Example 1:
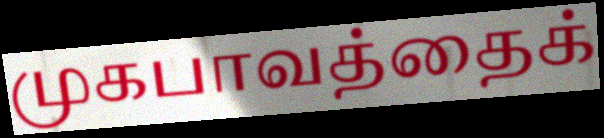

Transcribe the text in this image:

முகபாவத்தைக்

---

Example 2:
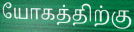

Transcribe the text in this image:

யோகத்திற்கு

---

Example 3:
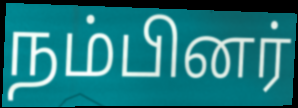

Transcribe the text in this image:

நம்பினர்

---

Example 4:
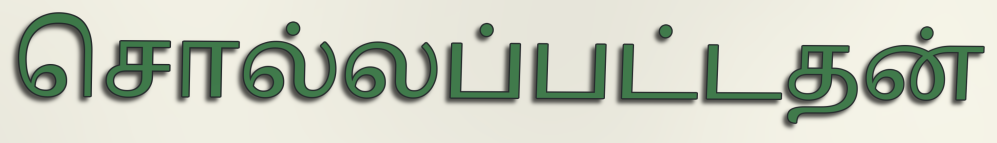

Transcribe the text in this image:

சொல்லப்பட்டதன்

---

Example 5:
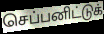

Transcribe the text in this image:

செப்பனிட்டுக்